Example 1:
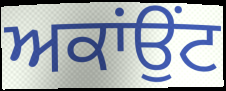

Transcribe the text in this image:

ਅਕਾਂਉਂਟ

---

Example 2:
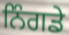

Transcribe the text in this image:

ਨਿੰਗਡੇ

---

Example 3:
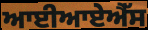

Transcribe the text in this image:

ਆਈਆਏਐੱਸ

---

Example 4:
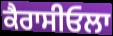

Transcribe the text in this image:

ਕੈਰਾਸੀਓਲਾ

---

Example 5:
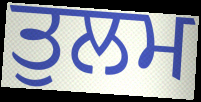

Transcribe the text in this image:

ਤੁਲਮ